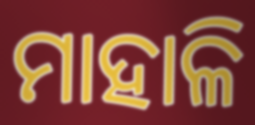
ମାହାଳି